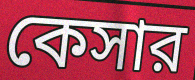
কেসার